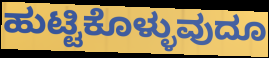
ಹುಟ್ಟಿಕೊಳ್ಳುವುದೂ